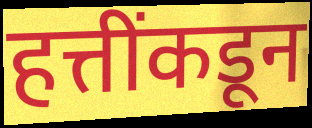
हत्तींकडून